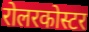
रोलरकोस्टर